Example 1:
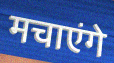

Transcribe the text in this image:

मचाएंगे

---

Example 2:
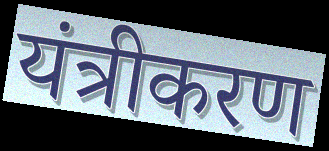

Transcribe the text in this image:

यंत्रीकरण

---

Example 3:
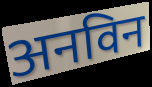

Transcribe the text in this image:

अनविन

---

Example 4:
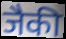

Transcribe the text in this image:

जैकी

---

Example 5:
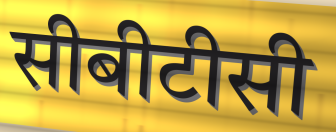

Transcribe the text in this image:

सीबीटीसी